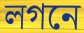
লগনে